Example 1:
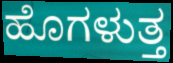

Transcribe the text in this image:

ಹೊಗಳುತ್ತ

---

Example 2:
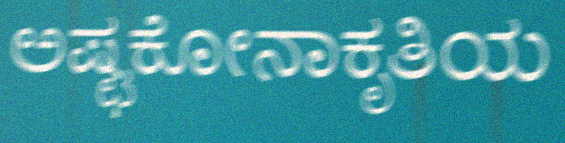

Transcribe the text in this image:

ಅಷ್ಟಕೋನಾಕೃತಿಯ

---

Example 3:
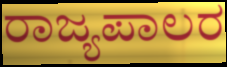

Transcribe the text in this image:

ರಾಜ್ಯಪಾಲರ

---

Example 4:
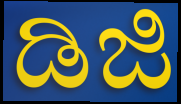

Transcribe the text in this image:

ಡಿಜಿ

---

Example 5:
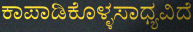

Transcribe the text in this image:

ಕಾಪಾಡಿಕೊಳ್ಳಸಾಧ್ಯವಿದೆ